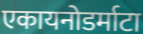
एकायनोडर्माटा